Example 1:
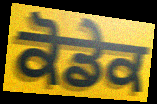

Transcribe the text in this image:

ਕੋਡੇਕ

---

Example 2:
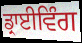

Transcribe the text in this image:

ਡ੍ਰਾਈਵਿੰਗ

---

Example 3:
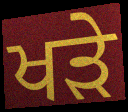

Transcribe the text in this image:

ਖੜੇ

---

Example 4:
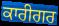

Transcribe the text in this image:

ਕਾਰੀਗਰ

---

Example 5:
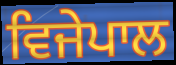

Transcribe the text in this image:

ਵਿਜੇਪਾਲ